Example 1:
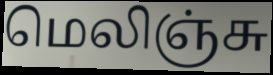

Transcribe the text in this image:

மெலிஞ்சு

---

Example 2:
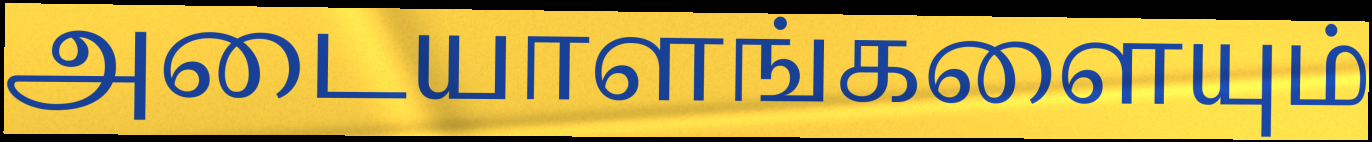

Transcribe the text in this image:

அடையாளங்களையும்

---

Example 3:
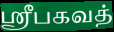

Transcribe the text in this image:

ஸ்ரீபகவத்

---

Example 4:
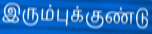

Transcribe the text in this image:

இரும்புக்குண்டு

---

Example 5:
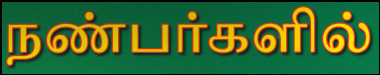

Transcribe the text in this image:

நண்பர்களில்